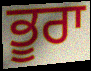
ਭੂਰਾ